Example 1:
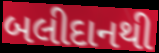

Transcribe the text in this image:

બલીદાનથી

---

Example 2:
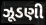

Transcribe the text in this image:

ઝૂડણી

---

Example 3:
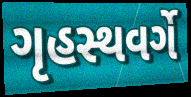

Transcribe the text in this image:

ગૃહસ્થવર્ગે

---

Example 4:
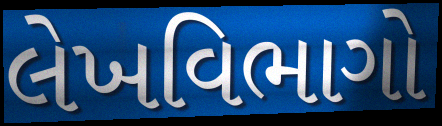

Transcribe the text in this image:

લેખવિભાગો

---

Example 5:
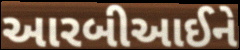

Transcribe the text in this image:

આરબીઆઈને